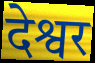
देश्वर